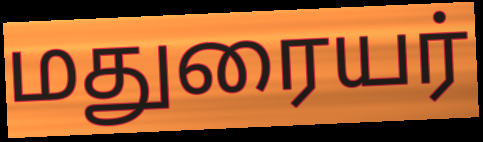
மதுரையர்